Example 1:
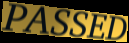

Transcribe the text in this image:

PASSED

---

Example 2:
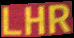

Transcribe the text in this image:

LHR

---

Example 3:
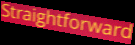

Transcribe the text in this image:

Straightforward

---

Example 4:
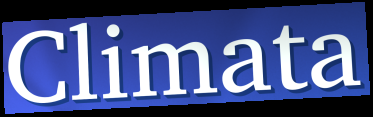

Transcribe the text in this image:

Climata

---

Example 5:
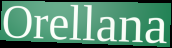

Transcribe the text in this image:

Orellana